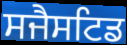
ਸਜੈਸਟਿਡ